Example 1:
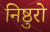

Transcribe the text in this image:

निष्ठुरो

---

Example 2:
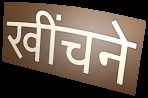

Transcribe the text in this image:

खींचने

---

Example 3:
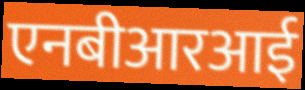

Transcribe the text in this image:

एनबीआरआई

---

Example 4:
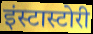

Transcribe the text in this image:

इंस्टास्टोरी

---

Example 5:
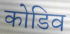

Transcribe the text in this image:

कोडिव